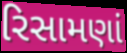
રિસામણાં